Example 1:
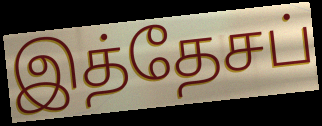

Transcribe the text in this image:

இத்தேசப்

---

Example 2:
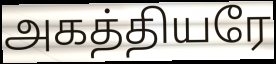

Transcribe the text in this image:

அகத்தியரே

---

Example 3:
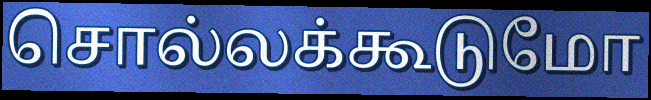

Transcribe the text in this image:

சொல்லக்கூடுமோ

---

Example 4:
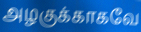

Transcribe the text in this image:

அழகுக்காகவே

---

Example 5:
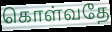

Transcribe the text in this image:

கொள்வதே